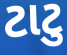
ટાટુ